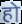
हो